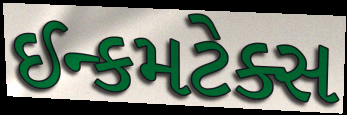
ઈન્કમટેક્સ